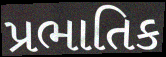
પ્રભાતિક